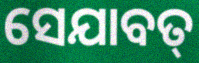
ସେଯାବତ୍